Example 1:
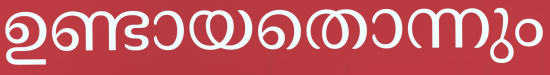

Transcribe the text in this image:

ഉണ്ടായതൊന്നും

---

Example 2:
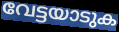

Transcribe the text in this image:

വേട്ടയാടുക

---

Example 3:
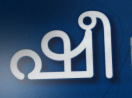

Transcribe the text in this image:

ഷീ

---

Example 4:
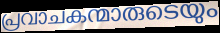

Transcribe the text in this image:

പ്രവാചകന്മാരുടെയും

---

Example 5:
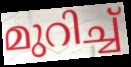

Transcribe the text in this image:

മുറിച്ച്